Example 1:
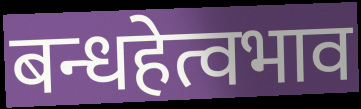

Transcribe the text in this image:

बन्धहेत्वभाव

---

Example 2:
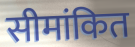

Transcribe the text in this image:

सीमांकित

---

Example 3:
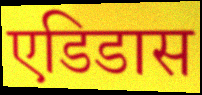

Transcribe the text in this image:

एडिडास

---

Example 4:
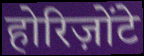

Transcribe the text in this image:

होरिज़ोंटे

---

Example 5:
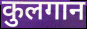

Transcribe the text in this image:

कुलगान